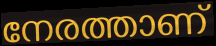
നേരത്താണ്